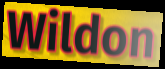
Wildon